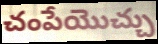
చంపేయొచ్చు